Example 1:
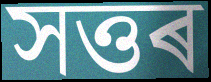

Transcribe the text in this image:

সত্তৰ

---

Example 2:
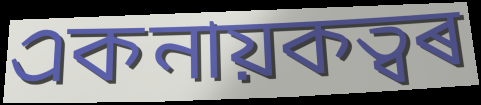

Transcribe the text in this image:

একনায়কত্বৰ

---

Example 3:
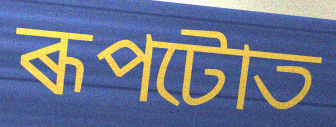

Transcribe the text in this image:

ৰূপটোত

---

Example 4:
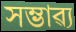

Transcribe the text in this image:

সম্ভাৱ্য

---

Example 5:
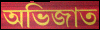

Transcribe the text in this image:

অভিজাত